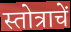
स्तोत्राचें